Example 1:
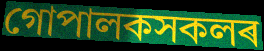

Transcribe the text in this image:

গোপালকসকলৰ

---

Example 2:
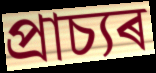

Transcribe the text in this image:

প্ৰাচ্যৰ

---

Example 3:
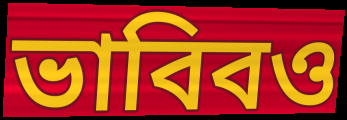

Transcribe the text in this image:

ভাবিবও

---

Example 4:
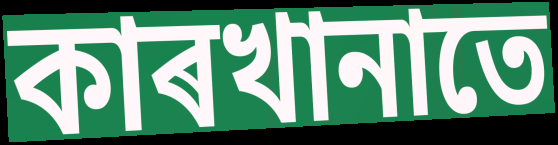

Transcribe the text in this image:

কাৰখানাতে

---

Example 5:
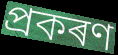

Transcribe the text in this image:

প্ৰকৰণ